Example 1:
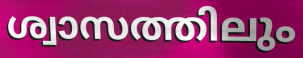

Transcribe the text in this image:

ശ്വാസത്തിലും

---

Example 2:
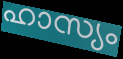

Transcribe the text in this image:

ഹാസ്യം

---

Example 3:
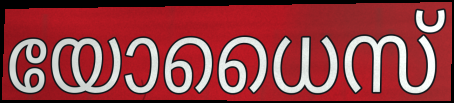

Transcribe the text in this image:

യോധൈസ്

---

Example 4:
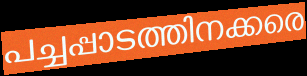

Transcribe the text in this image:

പച്ചപ്പാടത്തിനക്കരെ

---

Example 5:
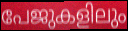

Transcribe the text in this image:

പേജുകളിലും